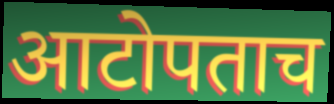
आटोपताच